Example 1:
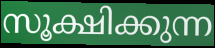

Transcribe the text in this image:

സൂക്ഷിക്കുന്ന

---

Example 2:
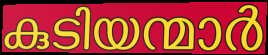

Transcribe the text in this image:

കുടിയന്മാർ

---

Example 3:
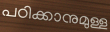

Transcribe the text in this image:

പഠിക്കാനുമുള്ള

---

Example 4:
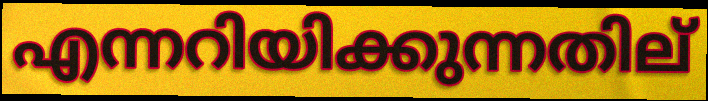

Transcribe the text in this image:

എന്നറിയിക്കുന്നതില്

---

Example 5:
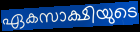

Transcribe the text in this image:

ഏകസാക്ഷിയുടെ